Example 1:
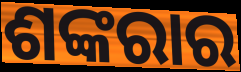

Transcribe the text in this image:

ଶଙ୍କରାର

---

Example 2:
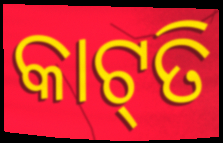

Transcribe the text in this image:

କାଟ୍‍ତି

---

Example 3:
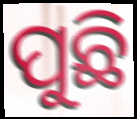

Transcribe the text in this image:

ପୁଛି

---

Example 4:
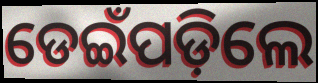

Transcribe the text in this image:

ଡେଇଁପଡ଼ିଲେ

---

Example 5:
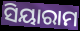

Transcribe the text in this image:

ସିୟାରାମ